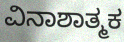
ವಿನಾಶಾತ್ಮಕ